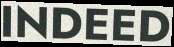
INDEED